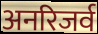
अनरिजर्व